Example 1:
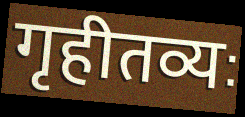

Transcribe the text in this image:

गृहीतव्यः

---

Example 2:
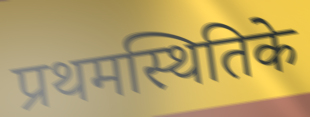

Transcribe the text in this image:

प्रथमस्थितिके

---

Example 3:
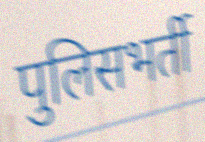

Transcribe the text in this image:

पुलिसभर्ती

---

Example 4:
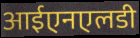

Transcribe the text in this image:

आईएनएलडी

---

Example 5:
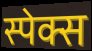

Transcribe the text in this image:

स्पेक्स